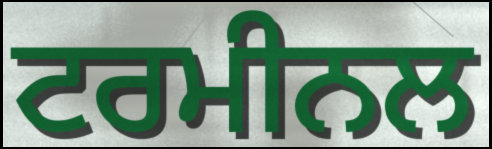
ਟਰਮੀਨਲ